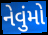
નેવુંમો